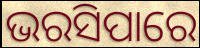
ଭରସିପାରେ